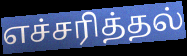
எச்சரித்தல்